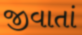
જીવાતાં